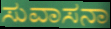
ಸುವಾಸನಾ